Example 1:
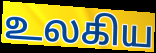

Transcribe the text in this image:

உலகிய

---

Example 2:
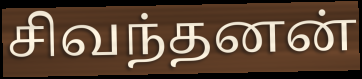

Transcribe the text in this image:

சிவந்தனன்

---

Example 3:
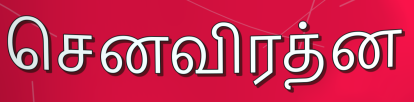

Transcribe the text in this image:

செனவிரத்ன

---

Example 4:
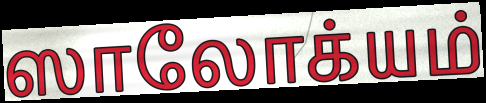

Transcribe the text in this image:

ஸாலோக்யம்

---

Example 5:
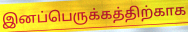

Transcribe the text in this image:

இனப்பெருக்கத்திற்காக